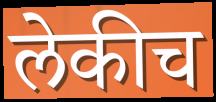
लेकीच